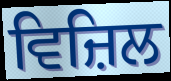
ਵਿਜ਼ਿਲ